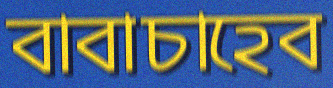
বাবাচাহেব